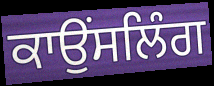
ਕਾਉੰਸਲਿੰਗ